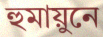
হুমায়ুনে